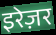
इरेज़र